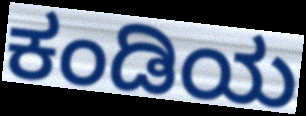
ಕಂಡಿಯ